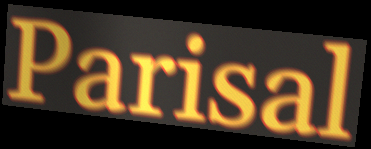
Parisal